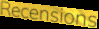
Recensions